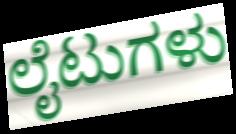
ಲೈಟುಗಳು